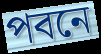
পবনে